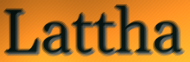
Lattha